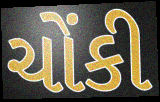
ચોંકી